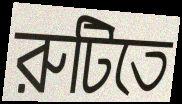
রুটিতে